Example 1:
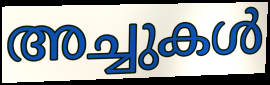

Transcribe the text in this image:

അച്ചുകൾ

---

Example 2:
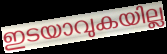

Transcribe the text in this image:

ഇടയാവുകയില്ല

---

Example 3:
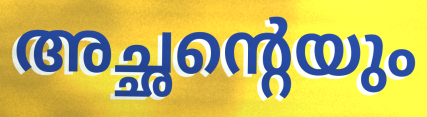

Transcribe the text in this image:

അച്ഛന്റെയും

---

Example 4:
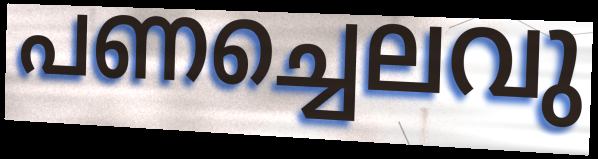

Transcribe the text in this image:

പണച്ചെലവു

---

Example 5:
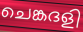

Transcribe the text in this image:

ചെങ്കദളി